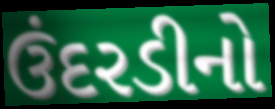
ઉંદરડીનો